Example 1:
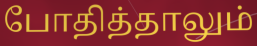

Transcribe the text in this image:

போதித்தாலும்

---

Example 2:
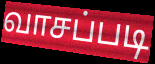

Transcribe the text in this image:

வாசப்படி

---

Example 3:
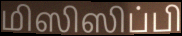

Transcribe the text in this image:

மிஸிஸிப்பி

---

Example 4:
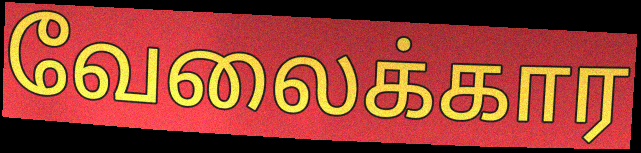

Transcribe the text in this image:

வேலைக்கார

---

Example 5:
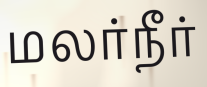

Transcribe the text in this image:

மலர்நீர்